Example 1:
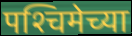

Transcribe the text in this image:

पश्चिमेच्या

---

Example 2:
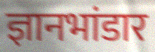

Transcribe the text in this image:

ज्ञानभांडार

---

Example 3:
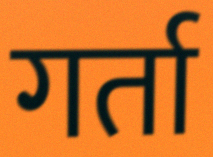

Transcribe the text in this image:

गर्ता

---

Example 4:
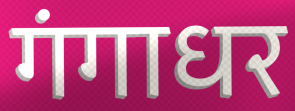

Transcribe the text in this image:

गंगाधर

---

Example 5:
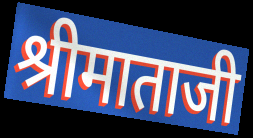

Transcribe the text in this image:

श्रीमाताजी